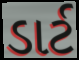
ડાર્ટ